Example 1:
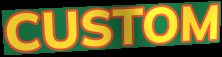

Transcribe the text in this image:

CUSTOM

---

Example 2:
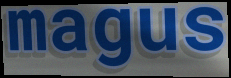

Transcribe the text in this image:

magus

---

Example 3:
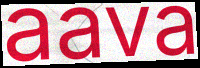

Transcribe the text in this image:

aava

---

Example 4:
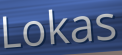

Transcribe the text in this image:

Lokas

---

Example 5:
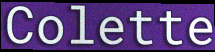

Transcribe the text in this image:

Colette